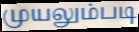
முயலும்படி